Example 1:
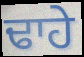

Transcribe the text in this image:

ਢਾਹੇ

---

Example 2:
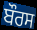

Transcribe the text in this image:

ਬੌਰਸ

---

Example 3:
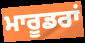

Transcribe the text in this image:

ਮਾਰੂਡਰਾਂ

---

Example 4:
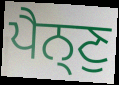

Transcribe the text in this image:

ਪੈਨ੍ਣੁ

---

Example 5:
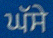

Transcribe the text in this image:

ਘੱਸੇ